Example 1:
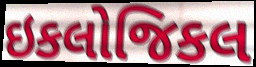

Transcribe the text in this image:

ઇકલોજિકલ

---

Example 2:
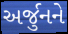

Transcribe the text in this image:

અર્જુનને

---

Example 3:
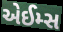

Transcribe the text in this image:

એઈમ્સ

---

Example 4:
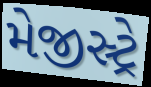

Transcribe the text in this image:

મેજીસ્ર્ટ્રે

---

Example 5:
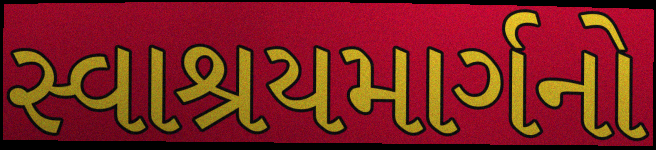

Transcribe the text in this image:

સ્વાશ્રયમાર્ગનો